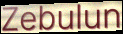
Zebulun